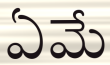
ఏమే